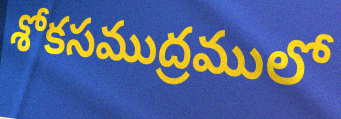
శోకసముద్రములో